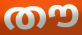
തൗ